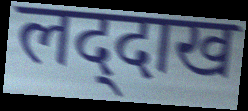
लद्‌दाख